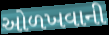
ઓળખવાની